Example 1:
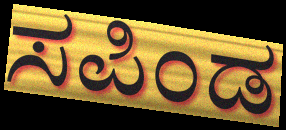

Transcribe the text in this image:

ಸಪಿಂಡ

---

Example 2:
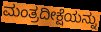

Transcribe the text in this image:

ಮಂತ್ರದೀಕ್ಷೆಯನ್ನು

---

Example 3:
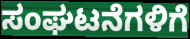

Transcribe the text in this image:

ಸಂಘಟನೆಗಳಿಗೆ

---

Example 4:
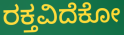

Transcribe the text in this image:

ರಕ್ತವಿದೆಕೋ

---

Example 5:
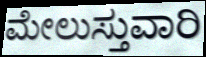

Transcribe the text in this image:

ಮೇಲುಸ್ತುವಾರಿ